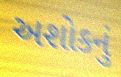
અશોકનું